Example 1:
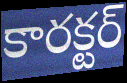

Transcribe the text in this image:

కారక్టర్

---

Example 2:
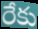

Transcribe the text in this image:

రేకు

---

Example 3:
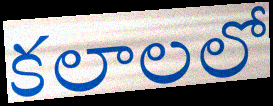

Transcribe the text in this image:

కలాలలో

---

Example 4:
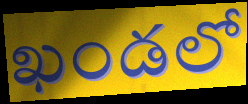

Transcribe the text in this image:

ఖండలో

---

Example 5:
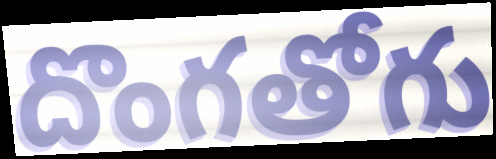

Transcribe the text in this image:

దొంగతోగు